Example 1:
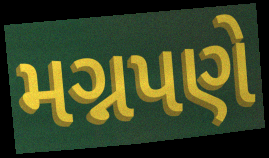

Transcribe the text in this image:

મગ્નપણે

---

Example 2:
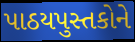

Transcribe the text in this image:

પાઠયપુસ્તકોને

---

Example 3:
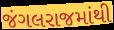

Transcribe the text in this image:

જંગલરાજમાંથી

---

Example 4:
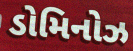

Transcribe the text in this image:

ડોમિનોઝ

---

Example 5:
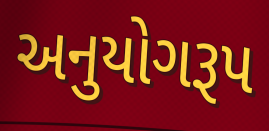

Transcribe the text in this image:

અનુયોગરૂપ